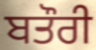
ਬਤੌਰੀ